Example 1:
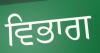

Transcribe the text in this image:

ਵਿਭਾਗ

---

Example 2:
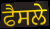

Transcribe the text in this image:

ਫੈਸਲੇ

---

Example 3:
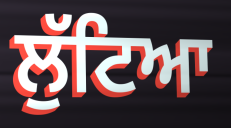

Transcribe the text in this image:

ਲੁੱਟਿਆ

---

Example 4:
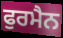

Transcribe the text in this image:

ਫੁਰਮੈਨ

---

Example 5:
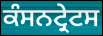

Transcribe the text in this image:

ਕੰਸਨਟ੍ਰੇਟਸ